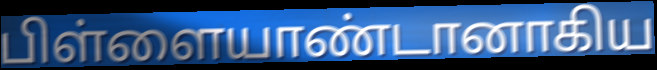
பிள்ளையாண்டானாகிய